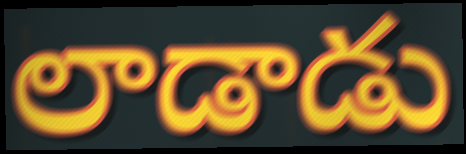
లాడాడు